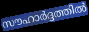
സൗഹാർദ്ദത്തിൽ